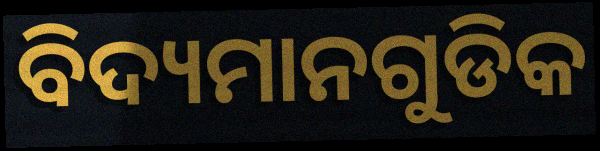
ବିଦ୍ୟମାନଗୁଡିକ